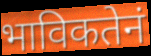
भाविकतेनं